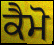
ਕੈਮੋ